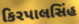
કિરપાલસિંહ